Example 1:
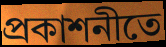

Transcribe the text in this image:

প্রকাশনীতে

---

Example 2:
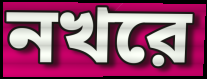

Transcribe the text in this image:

নখরে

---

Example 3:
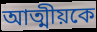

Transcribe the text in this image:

আত্মীয়কে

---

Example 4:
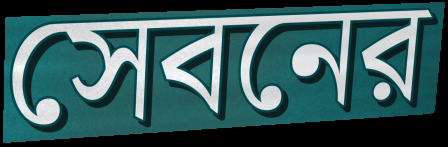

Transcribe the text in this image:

সেবনের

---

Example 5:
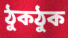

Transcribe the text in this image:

ঠুকঠুক